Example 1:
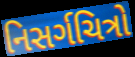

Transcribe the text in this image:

નિસર્ગચિત્રો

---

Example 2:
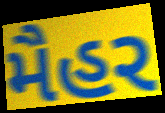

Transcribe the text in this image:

મૈહર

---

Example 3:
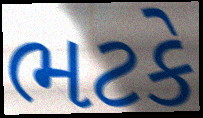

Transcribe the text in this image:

ભટકે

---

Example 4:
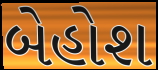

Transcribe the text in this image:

બેહોશ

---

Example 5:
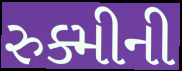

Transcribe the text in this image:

રુક્મીની